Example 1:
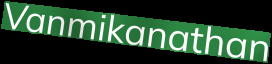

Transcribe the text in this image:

Vanmikanathan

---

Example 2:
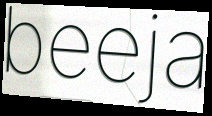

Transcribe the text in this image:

beeja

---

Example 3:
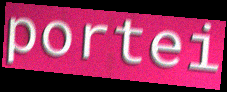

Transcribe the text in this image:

portei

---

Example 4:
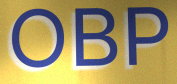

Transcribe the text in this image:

OBP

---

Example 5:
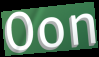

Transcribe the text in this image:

Oon